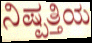
ನಿಷ್ಪತ್ತಿಯ